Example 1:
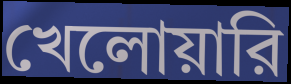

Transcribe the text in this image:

খেলোয়ারি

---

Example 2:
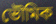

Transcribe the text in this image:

ভৌমিক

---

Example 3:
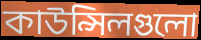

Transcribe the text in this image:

কাউন্সিলগুলো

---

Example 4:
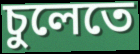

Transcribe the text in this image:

চুলেতে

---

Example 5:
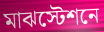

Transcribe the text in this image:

মাঝস্টেশনে